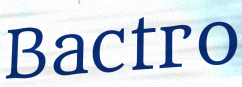
Bactro